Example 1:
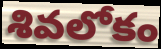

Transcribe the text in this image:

శివలోకం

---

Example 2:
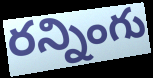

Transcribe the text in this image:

రన్నింగు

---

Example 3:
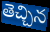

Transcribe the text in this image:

తెచ్చిన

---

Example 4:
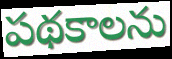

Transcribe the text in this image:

పథకాలను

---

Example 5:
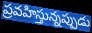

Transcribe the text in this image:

ప్రవహిస్తున్నప్పుడు